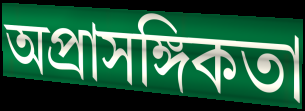
অপ্রাসঙ্গিকতা